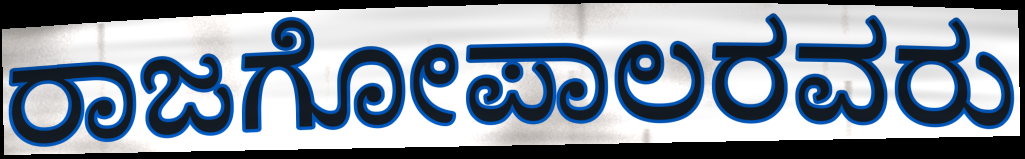
ರಾಜಗೋಪಾಲರವರು